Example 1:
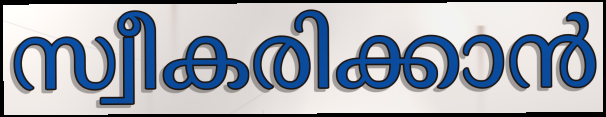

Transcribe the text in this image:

സ്വീകരിക്കാൻ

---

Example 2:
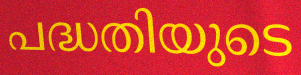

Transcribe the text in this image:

പദ്ധതിയുടെ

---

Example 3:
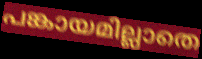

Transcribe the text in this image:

പങ്കായമില്ലാതെ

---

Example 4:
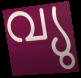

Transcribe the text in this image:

വ്യു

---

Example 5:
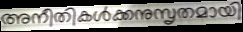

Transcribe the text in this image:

അനീതികൾക്കനുസൃതമായി